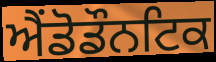
ਐਂਡੋਡੌਨਟਿਕ